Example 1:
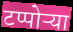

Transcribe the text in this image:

टप्पोऱ्या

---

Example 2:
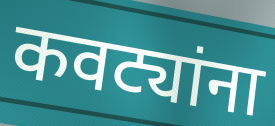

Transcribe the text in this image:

कवट्यांना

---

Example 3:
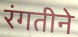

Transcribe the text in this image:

रंगतीने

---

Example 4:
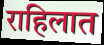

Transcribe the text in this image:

राहिलात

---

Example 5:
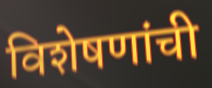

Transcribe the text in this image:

विशेषणांची